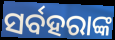
ସର୍ବହରାଙ୍କ